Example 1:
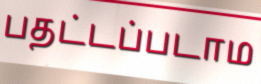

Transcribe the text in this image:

பதட்டப்படாம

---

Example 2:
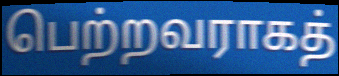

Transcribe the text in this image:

பெற்றவராகத்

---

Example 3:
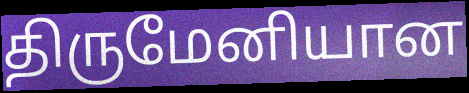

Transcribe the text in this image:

திருமேனியான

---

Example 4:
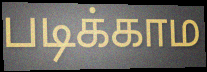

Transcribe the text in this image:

படிக்காம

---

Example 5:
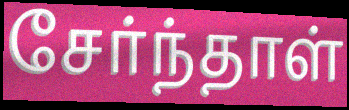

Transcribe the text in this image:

சேர்ந்தாள்